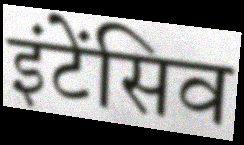
इंटेंसिव